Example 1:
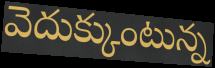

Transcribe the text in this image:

వెదుక్కుంటున్న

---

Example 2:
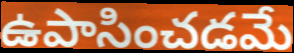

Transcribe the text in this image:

ఉపాసించడమే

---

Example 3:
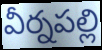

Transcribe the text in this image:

వీర్నపల్లి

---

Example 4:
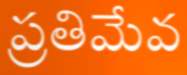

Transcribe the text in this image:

ప్రతిమేవ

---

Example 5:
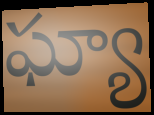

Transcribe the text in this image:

ఘ్యా